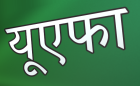
यूएफा